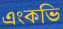
এংকভি